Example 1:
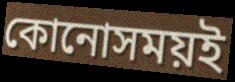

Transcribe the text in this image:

কোনোসময়ই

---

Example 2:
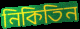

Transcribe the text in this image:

নিকিতিন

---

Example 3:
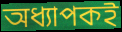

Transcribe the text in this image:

অধ্যাপকই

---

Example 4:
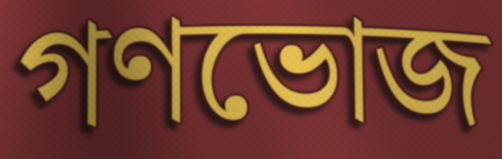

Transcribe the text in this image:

গণভোজ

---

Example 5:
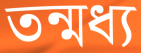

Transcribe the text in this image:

তন্মধ্য